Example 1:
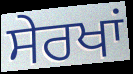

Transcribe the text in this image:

ਸੇਰਖਾਂ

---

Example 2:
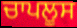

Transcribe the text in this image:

ਚਾਪਲੂਸ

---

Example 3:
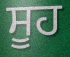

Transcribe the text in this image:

ਸੂਹ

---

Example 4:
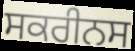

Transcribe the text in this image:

ਸਕਰੀਨਸ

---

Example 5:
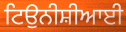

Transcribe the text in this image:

ਟਿਉਨੀਸ਼ੀਆਈ